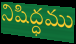
నిషిద్ధము